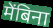
मेंबिना